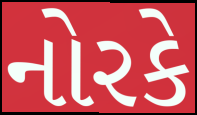
નોરકે